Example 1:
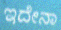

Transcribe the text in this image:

ಇದೇನಾ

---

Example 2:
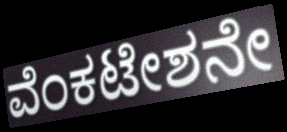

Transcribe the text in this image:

ವೆಂಕಟೇಶನೇ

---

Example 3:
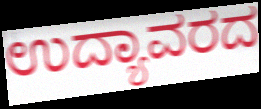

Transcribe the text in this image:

ಉದ್ಯಾವರದ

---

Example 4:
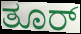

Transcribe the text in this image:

ತೂರ್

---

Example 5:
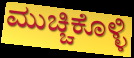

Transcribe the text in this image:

ಮುಚ್ಚಿಕೊಳ್ಳಿ